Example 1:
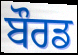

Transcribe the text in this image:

ਬੌਰਡ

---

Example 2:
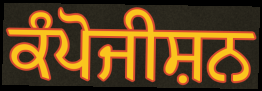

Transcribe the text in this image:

ਕੰਪੋਜੀਸ਼ਨ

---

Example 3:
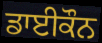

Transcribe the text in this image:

ਡਾਈਕੌਨ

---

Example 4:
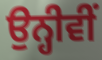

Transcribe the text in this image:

ਉਨ੍ਹੀਵੀਂ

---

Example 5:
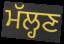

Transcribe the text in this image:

ਮੱਲ੍ਹਣ